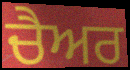
ਚੈਅਰ